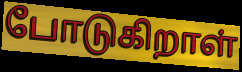
போடுகிறாள்